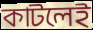
কাটলেই